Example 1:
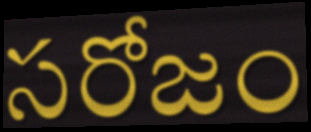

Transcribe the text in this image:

సరోజం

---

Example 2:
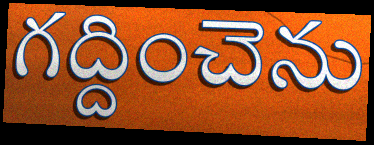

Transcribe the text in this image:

గద్దించెను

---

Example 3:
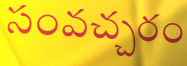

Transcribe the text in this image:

సంవచ్చరం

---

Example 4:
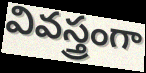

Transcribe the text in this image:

వివస్త్రంగా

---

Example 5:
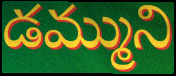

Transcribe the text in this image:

డమ్ముని